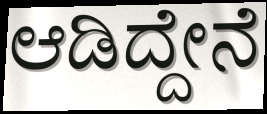
ಆಡಿದ್ದೇನೆ